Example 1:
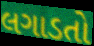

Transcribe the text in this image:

લગાડતો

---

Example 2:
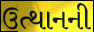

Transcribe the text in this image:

ઉત્થાનની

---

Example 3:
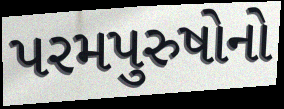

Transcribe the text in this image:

પરમપુરુષોનો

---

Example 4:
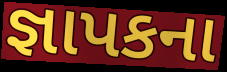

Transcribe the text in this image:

જ્ઞાપકના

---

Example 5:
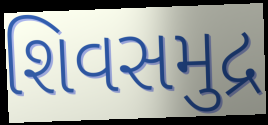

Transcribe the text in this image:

શિવસમુદ્ર